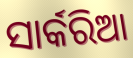
ସାର୍କରିଆ